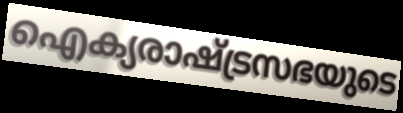
ഐക്യരാഷ്ട്രസഭയുടെ